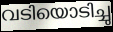
വടിയൊടിച്ചു